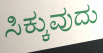
ಸಿಕ್ಕುವುದು